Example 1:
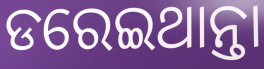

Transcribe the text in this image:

ଡରେଇଥାନ୍ତା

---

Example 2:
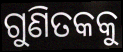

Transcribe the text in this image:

ଗୁଣିତକକୁ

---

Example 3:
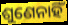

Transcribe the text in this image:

ଶୁଣେନାହିଁ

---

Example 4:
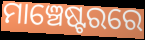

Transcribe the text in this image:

ମାଞ୍ଚେଷ୍ଟରରେ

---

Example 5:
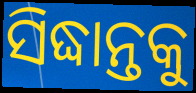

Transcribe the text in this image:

ସିଦ୍ଧାନ୍ତକୁ